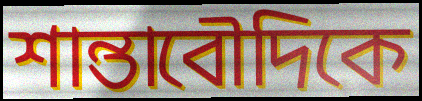
শান্তাবৌদিকে